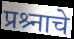
प्रश्र्नाचे